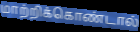
மாற்றிக்கொண்டால்